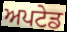
ਅਪਟੇਡ